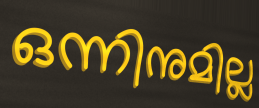
ഒന്നിനുമില്ല